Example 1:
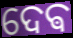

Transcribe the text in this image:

ଦେଵ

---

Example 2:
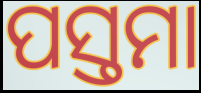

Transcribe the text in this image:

ପସ୍ତମା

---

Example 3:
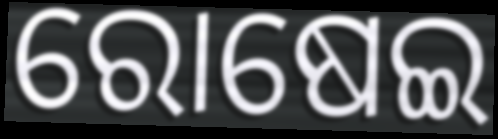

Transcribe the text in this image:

ରୋଷେଇ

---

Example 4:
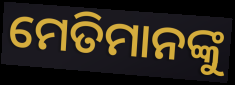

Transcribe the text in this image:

ମେତିମାନଙ୍କୁ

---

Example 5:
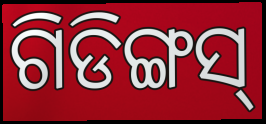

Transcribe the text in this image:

ଗିଡିଙ୍ଗସ୍